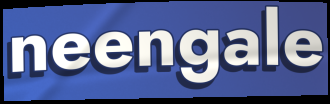
neengale